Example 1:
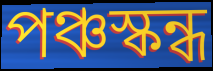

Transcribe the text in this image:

পঞ্চস্কন্ধ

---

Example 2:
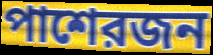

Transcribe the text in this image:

পাশেরজন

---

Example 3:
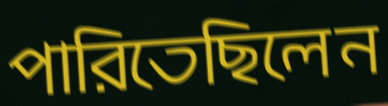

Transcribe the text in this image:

পারিতেছিলেন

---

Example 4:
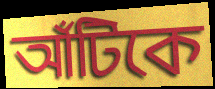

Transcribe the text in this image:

আঁটিকে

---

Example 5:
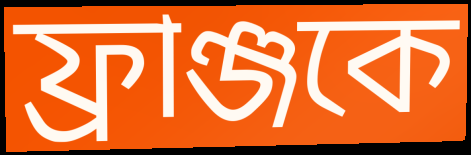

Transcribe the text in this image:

ফ্রাঞ্জকে